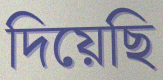
দিয়েছি